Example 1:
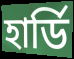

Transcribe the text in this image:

হাৰ্ডি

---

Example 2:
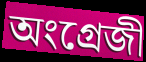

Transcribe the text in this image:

অংগ্ৰেজী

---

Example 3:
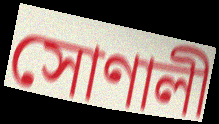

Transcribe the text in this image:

সোণালী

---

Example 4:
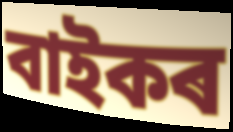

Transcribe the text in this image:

বাইকৰ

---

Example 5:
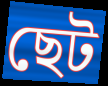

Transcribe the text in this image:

ছেট